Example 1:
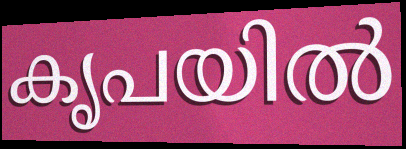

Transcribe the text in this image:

കൃപയിൽ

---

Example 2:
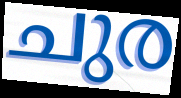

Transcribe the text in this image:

ചുര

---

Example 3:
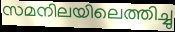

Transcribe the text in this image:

സമനിലയിലെത്തിച്ചു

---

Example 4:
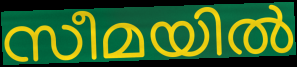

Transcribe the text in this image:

സീമയിൽ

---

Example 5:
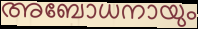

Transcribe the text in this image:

അബോധനായും